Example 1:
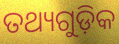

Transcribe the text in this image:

ତଥ୍ୟଗୁଡ଼ିକ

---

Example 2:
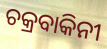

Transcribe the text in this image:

ଚକ୍ରବାକିନୀ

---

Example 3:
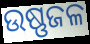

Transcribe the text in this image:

ଉଷ୍ଣଜଳ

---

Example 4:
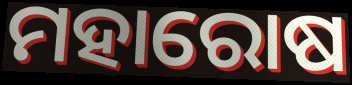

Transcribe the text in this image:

ମହାରୋଷ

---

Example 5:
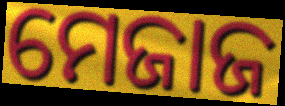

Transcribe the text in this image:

ମେଜାଜ